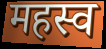
महस्व